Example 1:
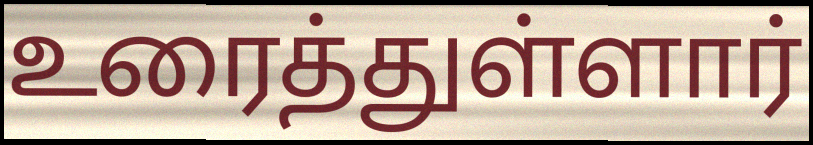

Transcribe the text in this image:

உரைத்துள்ளார்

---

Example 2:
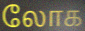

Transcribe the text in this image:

லோக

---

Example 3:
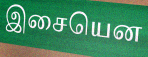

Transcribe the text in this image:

இசையென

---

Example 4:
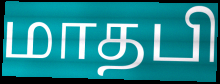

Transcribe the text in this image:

மாதபி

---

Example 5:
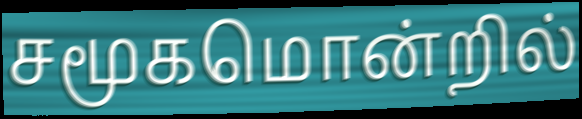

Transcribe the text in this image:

சமூகமொன்றில்